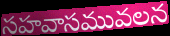
సహవాసమువలన